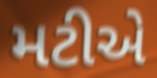
મટીએ